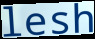
lesh